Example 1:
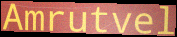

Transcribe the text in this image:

Amrutvel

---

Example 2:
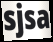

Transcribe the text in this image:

sjsa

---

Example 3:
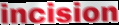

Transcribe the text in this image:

incision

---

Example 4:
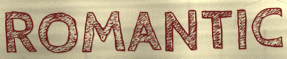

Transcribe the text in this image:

ROMANTIC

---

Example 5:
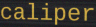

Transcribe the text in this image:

caliper